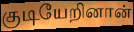
குடியேறினான்